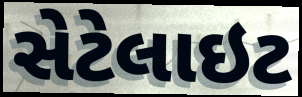
સેટેલાઇટ